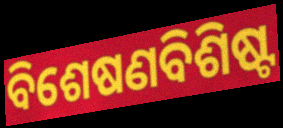
ବିଶେଷଣବିଶିଷ୍ଟ